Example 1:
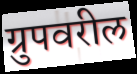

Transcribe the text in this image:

ग्रुपवरील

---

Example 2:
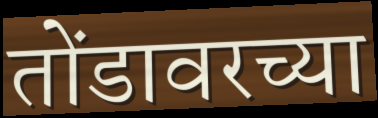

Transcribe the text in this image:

तोंडावरच्या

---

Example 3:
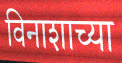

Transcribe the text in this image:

विनाशाच्या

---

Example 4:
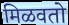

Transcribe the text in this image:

मिळवतो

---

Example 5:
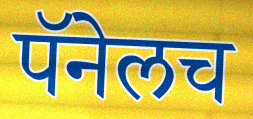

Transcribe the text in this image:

पॅनेलच